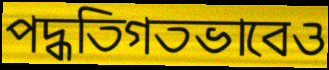
পদ্ধতিগতভাবেও